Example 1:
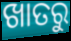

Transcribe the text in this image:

ଖାତରୁ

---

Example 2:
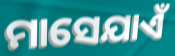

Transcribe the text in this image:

ମାସେଯାଏଁ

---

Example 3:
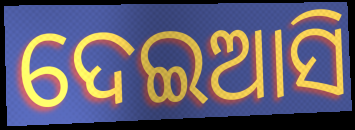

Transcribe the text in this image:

ଦେଇଆସି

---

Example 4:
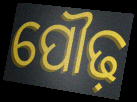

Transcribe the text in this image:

ପୌଢ଼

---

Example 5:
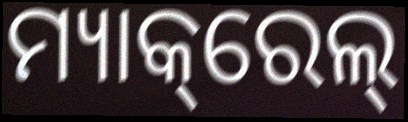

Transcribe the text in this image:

ମ୍ୟାକ୍‌ରେଲ୍